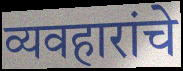
व्यवहारांचे